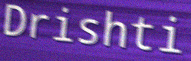
Drishti